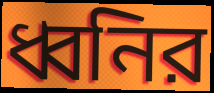
ধ্বনির